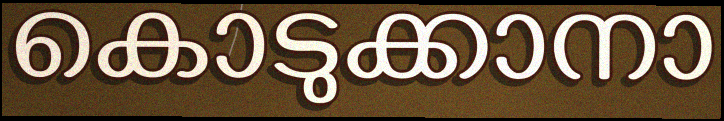
കൊടുക്കാനാ